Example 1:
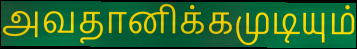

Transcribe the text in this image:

அவதானிக்கமுடியும்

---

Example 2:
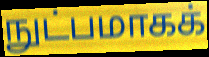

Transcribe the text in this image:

நுட்பமாகக்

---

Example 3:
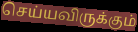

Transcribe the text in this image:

செய்யவிருக்கும்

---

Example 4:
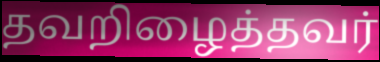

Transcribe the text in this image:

தவறிழைத்தவர்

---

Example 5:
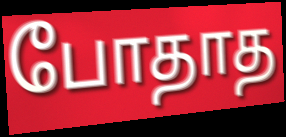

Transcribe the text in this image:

போதாத